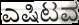
ಎಷಿಟವ